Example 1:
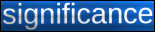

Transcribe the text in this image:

significance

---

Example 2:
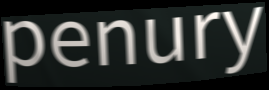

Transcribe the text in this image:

penury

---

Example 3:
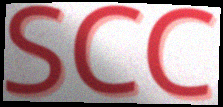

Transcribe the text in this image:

SCC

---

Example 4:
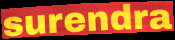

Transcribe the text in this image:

surendra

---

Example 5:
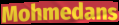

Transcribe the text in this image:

Mohmedans